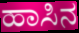
ಹಾಸಿನ